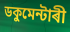
ডকুমেন্টাৰী